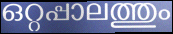
ഒറ്റപ്പാലത്തും